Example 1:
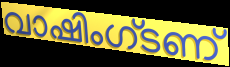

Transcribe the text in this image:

വാഷിംഗ്ടണ്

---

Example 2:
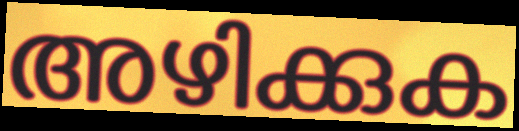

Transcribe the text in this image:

അഴിക്കുക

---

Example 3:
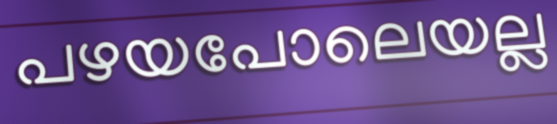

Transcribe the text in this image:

പഴയപോലെയല്ല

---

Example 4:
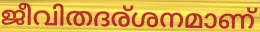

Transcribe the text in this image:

ജീവിതദര്ശനമാണ്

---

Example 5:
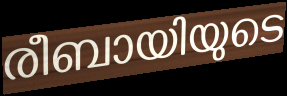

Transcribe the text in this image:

രീബായിയുടെ